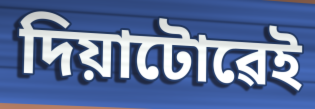
দিয়াটোৱেই